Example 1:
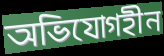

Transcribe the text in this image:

অভিযোগহীন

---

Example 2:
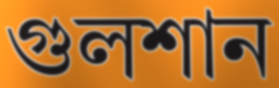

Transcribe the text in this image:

গুলশান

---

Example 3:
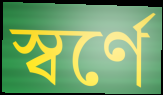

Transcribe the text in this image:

স্বর্ণে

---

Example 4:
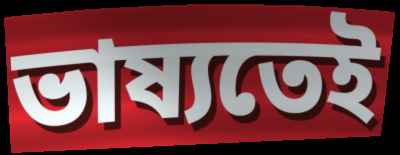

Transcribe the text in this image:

ভাষ্যতেই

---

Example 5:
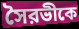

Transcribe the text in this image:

সৈরভীকে